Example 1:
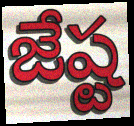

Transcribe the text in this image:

జేష్ట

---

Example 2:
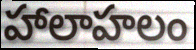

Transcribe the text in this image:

హాలాహలం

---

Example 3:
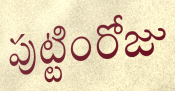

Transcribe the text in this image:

పుట్టింరోజు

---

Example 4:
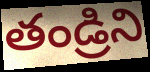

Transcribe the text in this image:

తండ్రిని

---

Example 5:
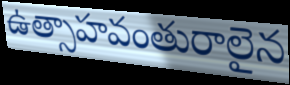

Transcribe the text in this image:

ఉత్సాహవంతురాలైన